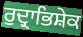
ਰੁਦ੍ਰਾਭਿਸ਼ੇਕ